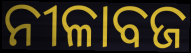
ନୀଳାବଜ